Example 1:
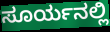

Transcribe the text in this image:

ಸೂರ್ಯನಲ್ಲಿ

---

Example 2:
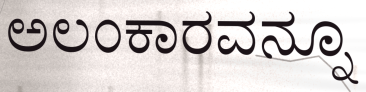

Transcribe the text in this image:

ಅಲಂಕಾರವನ್ನೂ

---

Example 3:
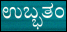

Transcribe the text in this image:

ಉಬ್ಭತಂ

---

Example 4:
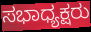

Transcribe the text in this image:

ಸಭಾಧ್ಯಕ್ಷರು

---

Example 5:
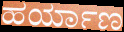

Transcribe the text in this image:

ಹರ್ಯಾಣ